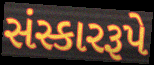
સંસ્કારરૂપે